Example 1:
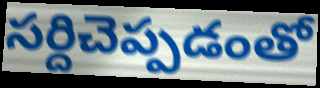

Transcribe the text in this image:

సర్దిచెప్పడంతో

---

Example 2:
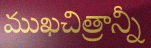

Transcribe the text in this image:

ముఖచిత్రాన్నీ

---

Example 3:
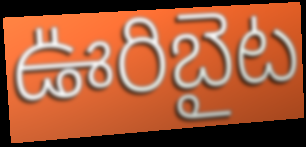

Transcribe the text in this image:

ఊరిబైట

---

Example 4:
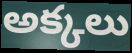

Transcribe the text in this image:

అక్కలు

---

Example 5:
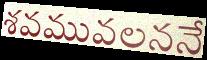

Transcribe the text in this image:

శవమువలననే